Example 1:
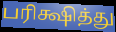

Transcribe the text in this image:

பரிக்ஷித்து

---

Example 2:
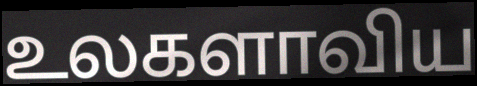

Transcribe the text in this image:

உலகளாவிய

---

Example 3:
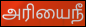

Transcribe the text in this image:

அரியைநீ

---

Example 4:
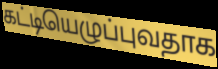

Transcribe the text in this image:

கட்டியெழுப்புவதாக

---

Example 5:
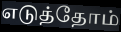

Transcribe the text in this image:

எடுத்தோம்